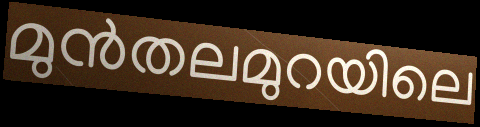
മുൻതലമുറയിലെ